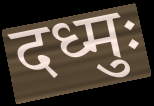
दध्मुः